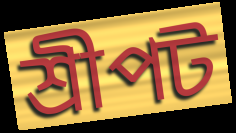
শ্রীপট